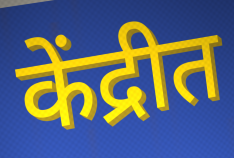
केंद्रीत